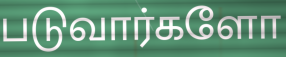
படுவார்களோ